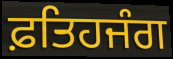
ਫ਼ਤਿਹਜੰਗ